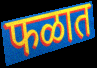
फळात